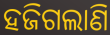
ହଜିଗଲାଣି